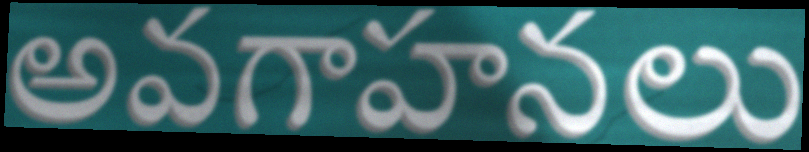
అవగాహనలు